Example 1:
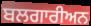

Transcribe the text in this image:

ਬਲਗਾਰੀਅਨ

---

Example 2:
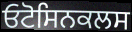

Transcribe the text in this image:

ਓਟੋਸਿਨਕਲਸ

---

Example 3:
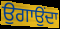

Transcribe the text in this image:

ਉਗਾਉਂਦਾ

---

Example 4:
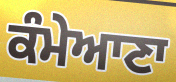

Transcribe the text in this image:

ਕੰਮੇਆਣਾ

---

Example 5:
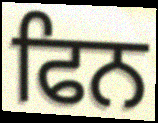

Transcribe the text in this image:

ਫਿਨ